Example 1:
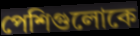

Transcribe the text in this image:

পেশিগুলোকে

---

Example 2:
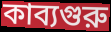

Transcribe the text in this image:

কাব্যগুরু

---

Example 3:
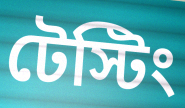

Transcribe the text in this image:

টেস্টিং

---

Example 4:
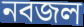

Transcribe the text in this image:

নবজল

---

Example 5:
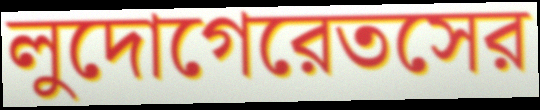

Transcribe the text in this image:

লুদোগেরেতসের